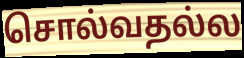
சொல்வதல்ல